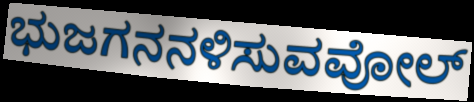
ಭುಜಗನನಳಿಸುವವೋಲ್